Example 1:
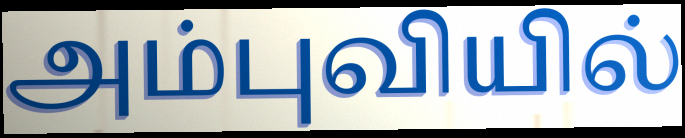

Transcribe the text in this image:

அம்புவியில்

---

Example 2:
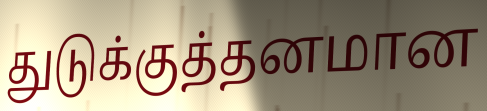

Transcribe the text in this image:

துடுக்குத்தனமான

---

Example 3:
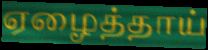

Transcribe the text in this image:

ஏழைத்தாய்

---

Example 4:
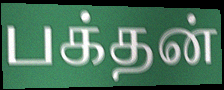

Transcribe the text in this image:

பக்தன்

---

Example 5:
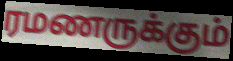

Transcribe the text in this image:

ரமணருக்கும்